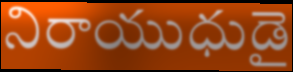
నిరాయుధుడై